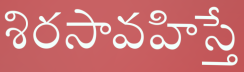
శిరసావహిస్తే